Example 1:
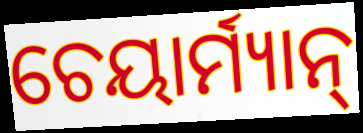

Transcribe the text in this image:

ଚେୟାର୍ମ୍ୟାନ୍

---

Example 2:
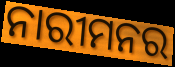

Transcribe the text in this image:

ନାରୀମନର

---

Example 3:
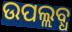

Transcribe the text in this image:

ଉପଲ୍ଲବ୍ଧ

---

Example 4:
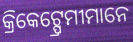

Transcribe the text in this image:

କ୍ରିକେଟ୍ପ୍ରେମୀମାନେ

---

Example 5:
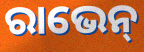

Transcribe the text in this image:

ରାଭେନ୍